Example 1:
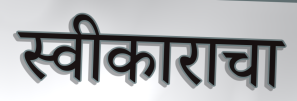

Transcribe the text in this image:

स्वीकाराचा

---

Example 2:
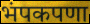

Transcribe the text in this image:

भंपकपणा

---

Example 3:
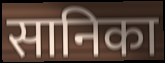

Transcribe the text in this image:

सानिका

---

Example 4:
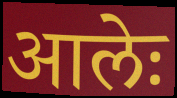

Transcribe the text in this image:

आलेः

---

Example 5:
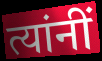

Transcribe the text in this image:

त्यांनीं